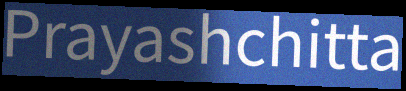
Prayashchitta